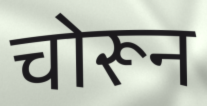
चोरून